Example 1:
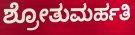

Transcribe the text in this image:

ಶ್ರೋತುಮರ್ಹತಿ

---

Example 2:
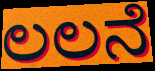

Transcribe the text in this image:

ಲಲನೆ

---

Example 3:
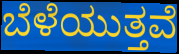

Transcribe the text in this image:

ಬೆಳೆಯುತ್ತವೆ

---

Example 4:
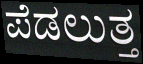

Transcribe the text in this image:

ಪೆಡಲುತ್ತ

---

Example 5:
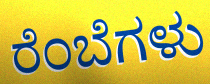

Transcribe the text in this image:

ರೆಂಬೆಗಳು